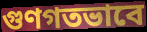
গুণগতভাবে